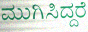
ಮುಗಿಸಿದ್ದರೆ